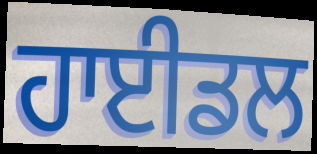
ਹਾਈਡਲ